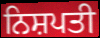
ਨਿਸ਼ਪਤੀ